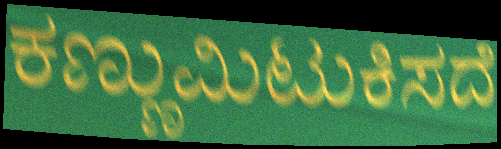
ಕಣ್ಣುಮಿಟುಕಿಸದೆ